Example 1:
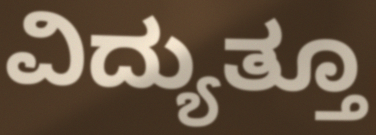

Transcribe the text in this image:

ವಿದ್ಯುತ್ತೂ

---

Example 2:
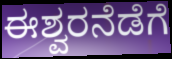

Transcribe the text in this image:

ಈಶ್ವರನೆಡೆಗೆ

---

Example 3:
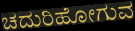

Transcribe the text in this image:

ಚದುರಿಹೋಗುವ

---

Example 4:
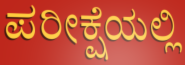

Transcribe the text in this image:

ಪರೀಕ್ಷೆಯಲ್ಲಿ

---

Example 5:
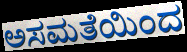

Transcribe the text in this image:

ಅಸಮತೆಯಿಂದ